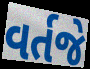
વર્તજે